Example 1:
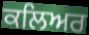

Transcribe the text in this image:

ਕਲਿਅਰ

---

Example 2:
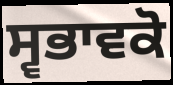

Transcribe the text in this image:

ਸ੍ਵਭਾਵਕੋ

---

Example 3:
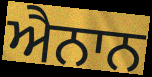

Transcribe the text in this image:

ਐਨਾਨ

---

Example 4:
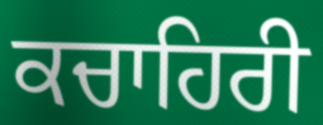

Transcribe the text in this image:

ਕਚਾਹਿਰੀ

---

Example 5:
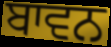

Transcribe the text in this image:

ਬਾਵਨ